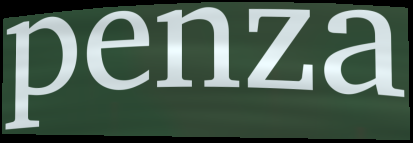
penza